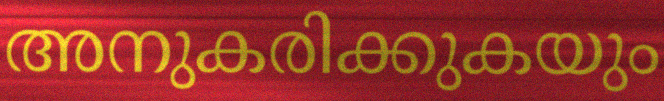
അനുകരിക്കുകയും